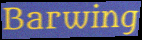
Barwing